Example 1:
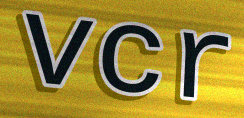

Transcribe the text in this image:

vcr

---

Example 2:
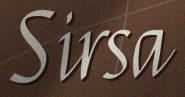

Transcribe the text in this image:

Sirsa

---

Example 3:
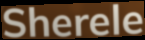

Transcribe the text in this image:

Sherele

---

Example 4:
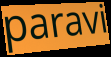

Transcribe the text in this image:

paravi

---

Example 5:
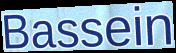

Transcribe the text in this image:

Bassein